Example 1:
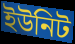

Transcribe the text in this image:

ইউনিট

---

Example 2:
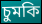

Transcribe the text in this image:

চুমকি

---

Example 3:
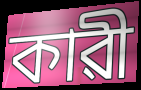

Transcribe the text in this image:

কাৱী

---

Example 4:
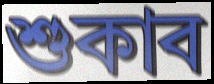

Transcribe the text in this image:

শুকাব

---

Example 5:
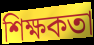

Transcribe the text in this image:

শিক্ষকতা